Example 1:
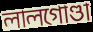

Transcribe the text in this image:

লালগোণ্ডা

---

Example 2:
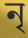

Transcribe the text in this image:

নৃ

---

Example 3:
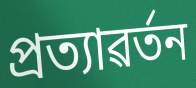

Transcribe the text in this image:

প্ৰত্যাৱৰ্তন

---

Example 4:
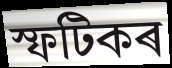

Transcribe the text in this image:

স্ফটিকৰ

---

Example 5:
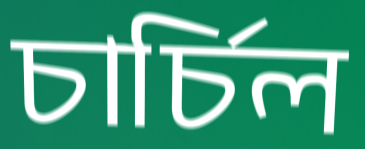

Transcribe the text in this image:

চাৰ্চিল